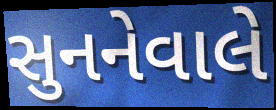
સુનનેવાલે